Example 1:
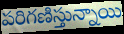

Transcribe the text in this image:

పరిగణిస్తున్నాయి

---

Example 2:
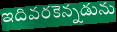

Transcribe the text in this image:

ఇదివరకెన్నడును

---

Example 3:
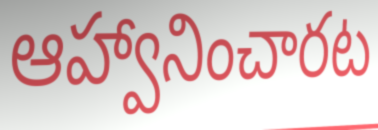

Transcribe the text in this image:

ఆహ్వానించారట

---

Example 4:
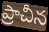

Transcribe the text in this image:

ప్రాచీన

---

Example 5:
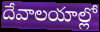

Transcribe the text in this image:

దేవాలయాల్లో